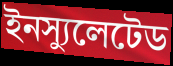
ইনস্যুলেটেড